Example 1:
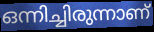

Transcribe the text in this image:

ഒന്നിച്ചിരുന്നാണ്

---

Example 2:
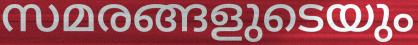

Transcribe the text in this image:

സമരങ്ങളുടെയും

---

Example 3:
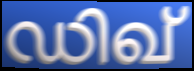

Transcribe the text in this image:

ഡിഖ്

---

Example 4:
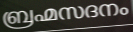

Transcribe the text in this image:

ബ്രഹ്മസദനം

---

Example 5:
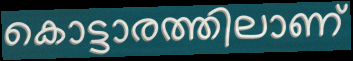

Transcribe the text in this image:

കൊട്ടാരത്തിലാണ്